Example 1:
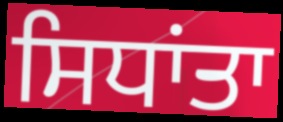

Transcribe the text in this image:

ਸਿਧਾਂਤਾ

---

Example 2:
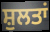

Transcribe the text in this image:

ਸ਼ੁਲਤਾਂ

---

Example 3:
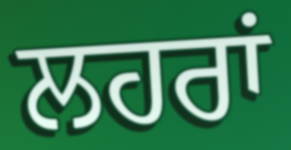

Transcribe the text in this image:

ਲਹਰਾਂ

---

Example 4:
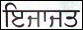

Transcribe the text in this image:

ਇਜਾਜਤ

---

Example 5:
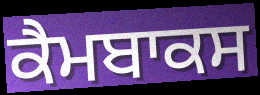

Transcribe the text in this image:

ਕੈਮਬਾਕਸ